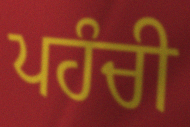
ਪਹੰਚੀ